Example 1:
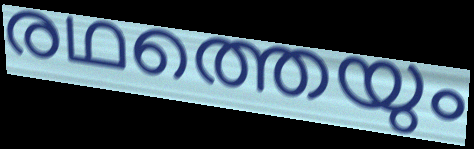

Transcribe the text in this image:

രഥത്തെയും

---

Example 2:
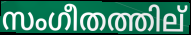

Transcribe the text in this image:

സംഗീതത്തില്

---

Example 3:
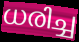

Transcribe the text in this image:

ധരിച്ച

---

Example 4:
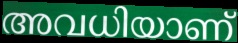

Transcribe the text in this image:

അവധിയാണ്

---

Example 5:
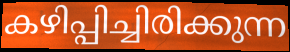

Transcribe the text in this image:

കഴിപ്പിച്ചിരിക്കുന്ന